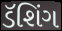
ડૅશિંગ